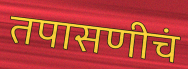
तपासणीचं